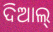
ଦିଆଲ୍